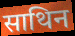
साथिन